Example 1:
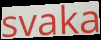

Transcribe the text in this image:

svaka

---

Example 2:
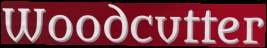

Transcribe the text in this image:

Woodcutter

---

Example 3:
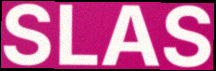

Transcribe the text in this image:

SLAS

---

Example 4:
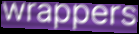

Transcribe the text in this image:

wrappers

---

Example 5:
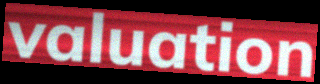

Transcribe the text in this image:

valuation